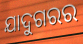
ଯାଦୁଗରର